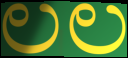
ಲಲ